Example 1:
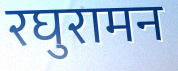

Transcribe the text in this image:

रघुरामन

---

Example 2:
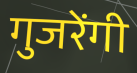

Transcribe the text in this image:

गुजरेंगी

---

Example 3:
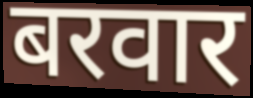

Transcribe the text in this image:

बरवार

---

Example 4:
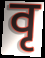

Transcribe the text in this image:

वृ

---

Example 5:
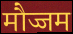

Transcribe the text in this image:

मौज्जम